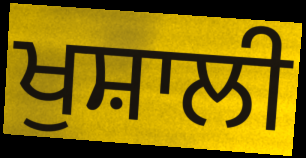
ਖੁਸ਼ਾਲੀ